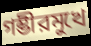
গম্ভীরমুখে